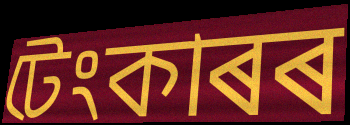
টেংকাৰৰ